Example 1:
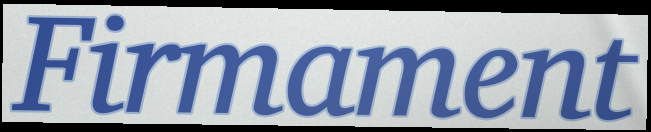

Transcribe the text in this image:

Firmament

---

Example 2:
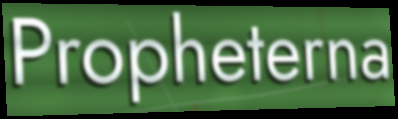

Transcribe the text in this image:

Propheterna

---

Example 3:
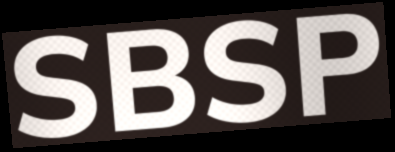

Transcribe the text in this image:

SBSP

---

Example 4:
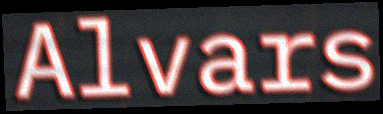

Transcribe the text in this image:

Alvars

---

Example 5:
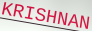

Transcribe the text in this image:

KRISHNAN